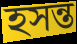
হসন্ত